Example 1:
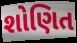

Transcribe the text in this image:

શોણિત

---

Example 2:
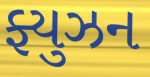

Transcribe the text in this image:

ફ્યુઝન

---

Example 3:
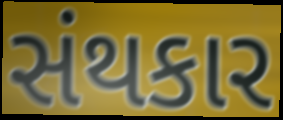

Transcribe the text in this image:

સંથકાર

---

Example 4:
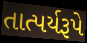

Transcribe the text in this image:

તાત્પર્યરૂપે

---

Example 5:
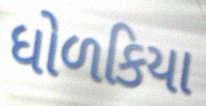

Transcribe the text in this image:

ધોળકિયા